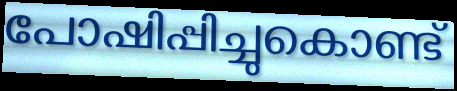
പോഷിപ്പിച്ചുകൊണ്ട്